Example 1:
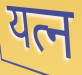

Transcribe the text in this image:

यत्न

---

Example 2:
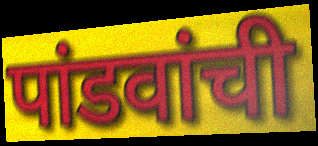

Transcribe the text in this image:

पांडवांची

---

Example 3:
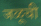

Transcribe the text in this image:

जळूची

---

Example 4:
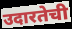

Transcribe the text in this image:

उदारतेची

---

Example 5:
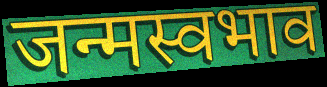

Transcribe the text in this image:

जन्मस्वभाव